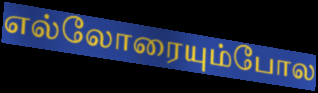
எல்லோரையும்போல